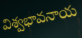
విశ్వభావనాయ